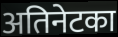
अतिनेटका